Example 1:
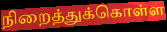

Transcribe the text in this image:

நிறைத்துக்கொள்ள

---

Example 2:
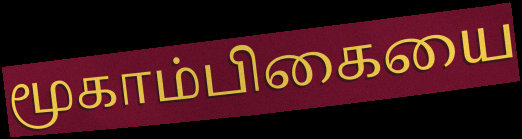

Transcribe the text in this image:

மூகாம்பிகையை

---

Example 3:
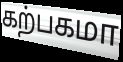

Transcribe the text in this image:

கற்பகமா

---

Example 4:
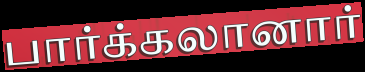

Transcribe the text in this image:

பார்க்கலானார்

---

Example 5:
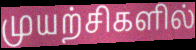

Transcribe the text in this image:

முயற்சிகளில்